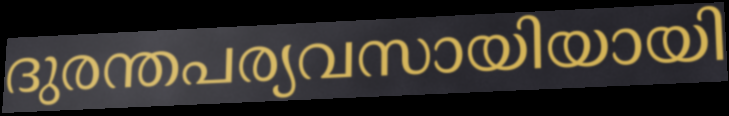
ദുരന്തപര്യവസായിയായി